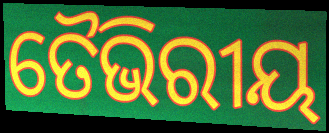
ତୈଭିରୀୟ